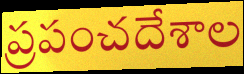
ప్రపంచదేశాల